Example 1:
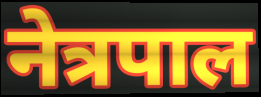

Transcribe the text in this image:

नेत्रपाल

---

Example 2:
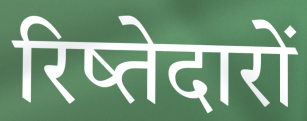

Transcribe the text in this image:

रिष्तेदारों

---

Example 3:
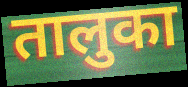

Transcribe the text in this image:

तालुका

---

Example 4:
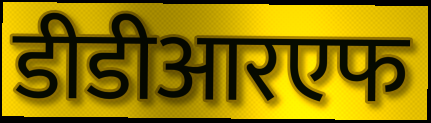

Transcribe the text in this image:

डीडीआरएफ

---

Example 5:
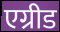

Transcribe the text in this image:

एग्रीड